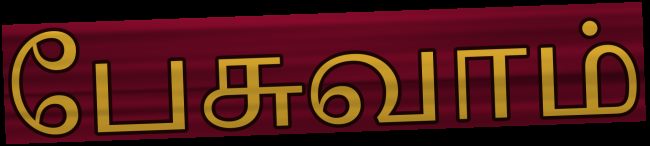
பேசுவாம்